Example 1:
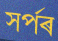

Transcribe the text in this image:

সৰ্পৰ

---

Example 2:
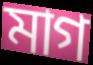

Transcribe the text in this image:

মাগ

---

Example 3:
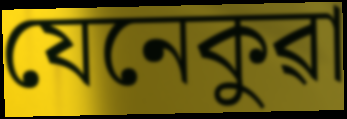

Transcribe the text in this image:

যেনেকুৱা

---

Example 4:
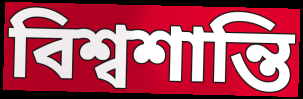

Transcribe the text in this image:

বিশ্বশান্তি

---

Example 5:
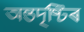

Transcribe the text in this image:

অন্তৰ্দৃষ্টিৰ